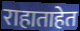
राहाताहेत